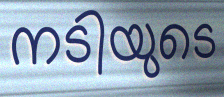
നടിയുടെ